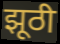
झूठी